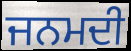
ਜਨਮਦੀ